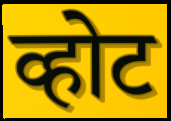
व्होट